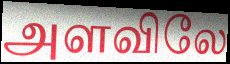
அளவிலே